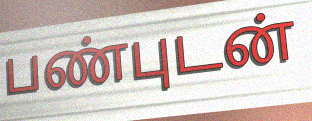
பண்புடன்